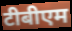
टीबीएम